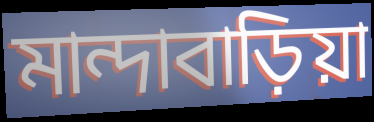
মান্দাবাড়িয়া